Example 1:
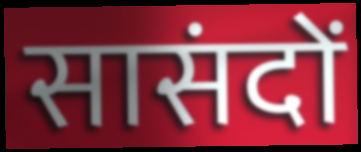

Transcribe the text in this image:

सासंदों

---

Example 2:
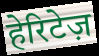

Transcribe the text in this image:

हेरिटेज़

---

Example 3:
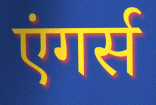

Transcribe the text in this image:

एंगर्स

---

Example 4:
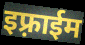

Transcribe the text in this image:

इफ़्राईम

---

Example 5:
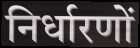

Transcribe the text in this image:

निर्धारणों